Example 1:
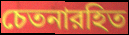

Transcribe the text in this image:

চেতনারহিত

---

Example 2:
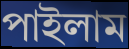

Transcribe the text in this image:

পাইলাম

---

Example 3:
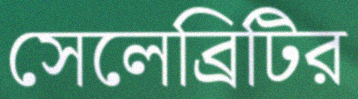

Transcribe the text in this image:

সেলেব্রিটির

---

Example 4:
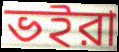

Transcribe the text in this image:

ভইরা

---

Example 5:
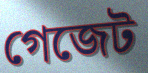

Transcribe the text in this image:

গেজেট